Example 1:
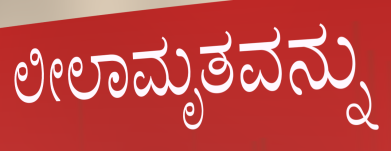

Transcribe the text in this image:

ಲೀಲಾಮೃತವನ್ನು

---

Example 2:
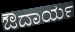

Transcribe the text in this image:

ಔದಾರ್ಯ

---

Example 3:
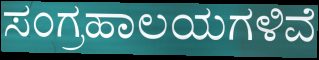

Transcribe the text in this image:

ಸಂಗ್ರಹಾಲಯಗಳಿವೆ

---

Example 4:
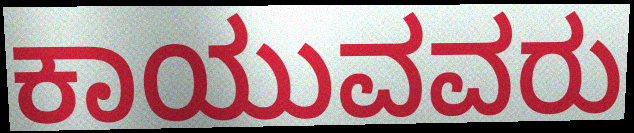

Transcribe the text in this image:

ಕಾಯುವವರು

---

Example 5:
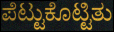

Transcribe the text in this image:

ಪೆಟ್ಟುಕೊಟ್ಟಿತು